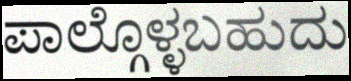
ಪಾಲ್ಗೊಳ್ಳಬಹುದು